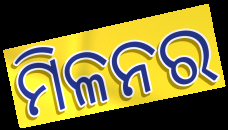
ମିଳନର